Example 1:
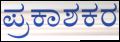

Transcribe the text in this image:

ಪ್ರಕಾಶಕರ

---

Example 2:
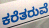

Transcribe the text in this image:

ಕರೆತರುವೆ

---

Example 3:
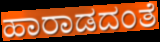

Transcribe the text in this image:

ಹಾರಾಡದಂತೆ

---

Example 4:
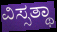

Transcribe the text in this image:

ವಿಸ್ಸತ್ಥಾ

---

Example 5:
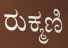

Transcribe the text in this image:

ರುಕ್ಮಣಿ